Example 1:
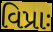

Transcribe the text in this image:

વિપ્રાઃ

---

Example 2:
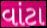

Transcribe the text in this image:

વાંટા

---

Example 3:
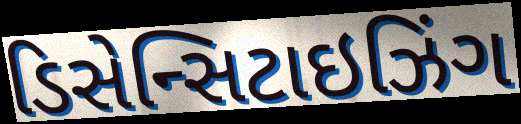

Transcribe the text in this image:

ડિસેન્સિટાઇઝિંગ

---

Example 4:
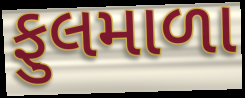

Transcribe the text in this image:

ફુલમાળા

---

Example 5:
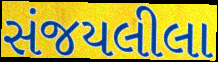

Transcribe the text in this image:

સંજયલીલા